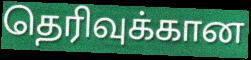
தெரிவுக்கான